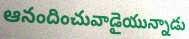
ఆనందించువాడైయున్నాడు